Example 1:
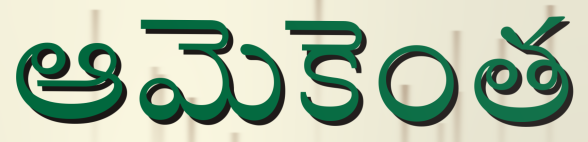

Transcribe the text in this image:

ఆమెకెంత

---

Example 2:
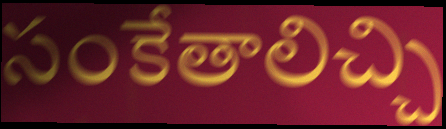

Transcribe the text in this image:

సంకేతాలిచ్చి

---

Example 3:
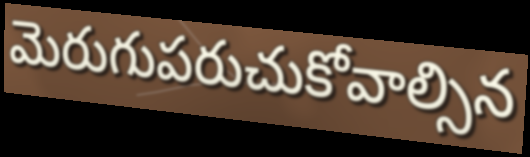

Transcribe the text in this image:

మెరుగుపరుచుకోవాల్సిన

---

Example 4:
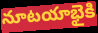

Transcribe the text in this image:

నూటయాభైకి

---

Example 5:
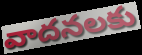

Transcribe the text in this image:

వాదనలకు